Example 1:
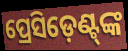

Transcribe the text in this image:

ପ୍ରେସିଡ଼େଣ୍ଟ୍‍ଙ୍କ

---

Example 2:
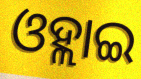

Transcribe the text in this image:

ଓହ୍ଲାଇ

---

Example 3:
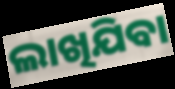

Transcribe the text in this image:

ଲାଖିଯିବା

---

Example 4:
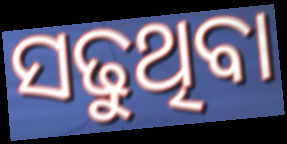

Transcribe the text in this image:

ସଢୁଥିବା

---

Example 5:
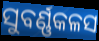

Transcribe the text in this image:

ସୁବର୍ଣ୍ଣକଳସ